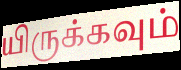
யிருக்கவும்